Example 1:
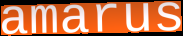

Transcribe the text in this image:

amarus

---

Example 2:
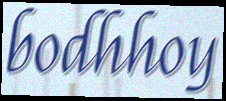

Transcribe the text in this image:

bodhhoy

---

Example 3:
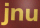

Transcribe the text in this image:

jnu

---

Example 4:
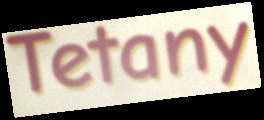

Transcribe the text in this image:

Tetany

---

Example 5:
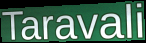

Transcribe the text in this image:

Taravali